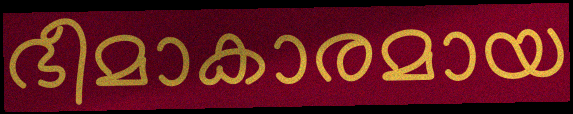
ഭീമാകാരമായ